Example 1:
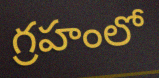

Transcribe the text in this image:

గ్రహంలో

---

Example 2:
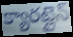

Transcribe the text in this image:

క్యారట్లైన్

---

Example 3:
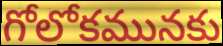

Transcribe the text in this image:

గోలోకమునకు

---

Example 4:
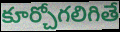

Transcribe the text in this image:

కూర్చోగలిగితే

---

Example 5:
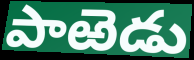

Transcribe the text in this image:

పాఱెడు